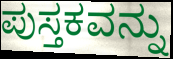
ಪುಸ್ತಕವನ್ನು